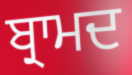
ਬ੍ਰਾਮਦ